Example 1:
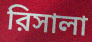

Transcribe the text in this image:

রিসালা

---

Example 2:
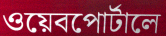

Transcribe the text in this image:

ওয়েবপোর্টালে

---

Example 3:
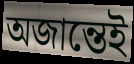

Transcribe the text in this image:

অজান্তেই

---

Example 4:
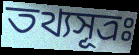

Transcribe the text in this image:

তথ্যসূত্রঃ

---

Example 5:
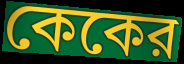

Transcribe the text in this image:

কেকের